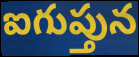
ఐగుప్తున